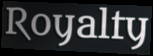
Royalty